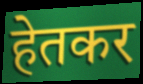
हेतकर